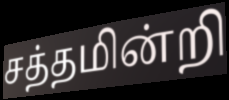
சத்தமின்றி